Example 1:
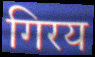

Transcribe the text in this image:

गिरय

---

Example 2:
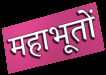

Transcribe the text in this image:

महाभूतों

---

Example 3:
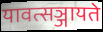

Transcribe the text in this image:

यावत्सञ्जायते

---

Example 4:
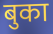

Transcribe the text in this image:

बुका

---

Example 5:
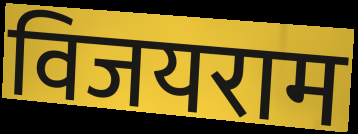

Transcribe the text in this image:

विजयराम